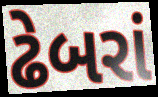
ઢેબરાં